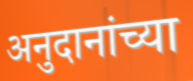
अनुदानांच्या